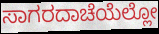
ಸಾಗರದಾಚೆಯೆಲ್ಲೋ